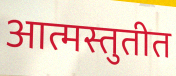
आत्मस्तुतीत